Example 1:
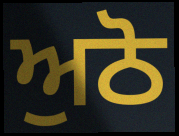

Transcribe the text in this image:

ਅੁਠੋ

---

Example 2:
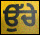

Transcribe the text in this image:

ਉੱਚੇ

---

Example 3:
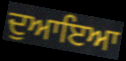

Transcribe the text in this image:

ਦੁਆਇਆ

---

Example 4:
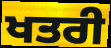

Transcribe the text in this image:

ਖਤਰੀ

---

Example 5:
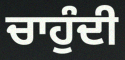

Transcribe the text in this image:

ਚਾਹੁੰਦੀ